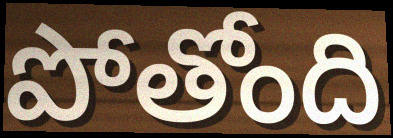
పోతోంది